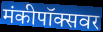
मंकीपॉक्सवर